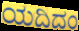
ಯದಿದಂ